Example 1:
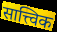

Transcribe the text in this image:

सात्त्विक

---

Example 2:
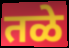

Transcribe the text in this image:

तळे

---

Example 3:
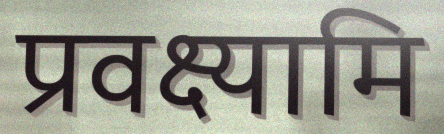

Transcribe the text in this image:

प्रवक्ष्यामि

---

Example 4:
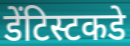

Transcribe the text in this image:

डेंटिस्टकडे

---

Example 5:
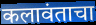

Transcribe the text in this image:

कलावंताचा